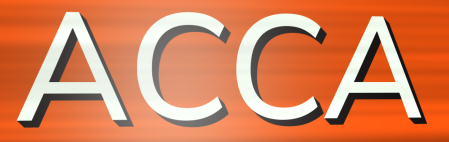
ACCA